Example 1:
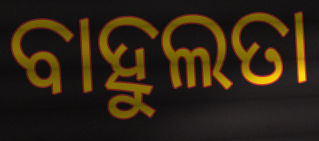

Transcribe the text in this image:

ବାହୁଲତା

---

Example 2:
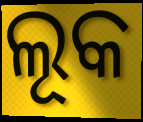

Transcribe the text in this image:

ଲୂକ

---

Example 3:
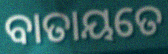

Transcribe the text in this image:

ବାତାୟତେ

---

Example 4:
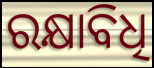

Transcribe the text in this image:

ରକ୍ଷାବିଧି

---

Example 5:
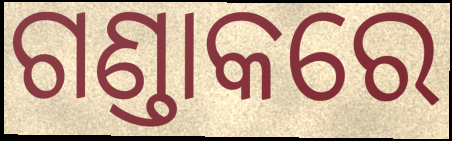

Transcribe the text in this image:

ଗଣ୍ଡାକରେ